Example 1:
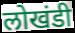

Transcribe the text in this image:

लोखंडी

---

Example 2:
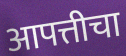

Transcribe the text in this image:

आपत्तीचा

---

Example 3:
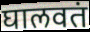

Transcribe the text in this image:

घालवतं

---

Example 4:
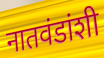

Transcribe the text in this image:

नातवंडांशी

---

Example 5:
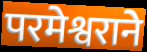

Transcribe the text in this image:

परमेश्वराने